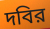
দবির